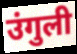
उंगुली